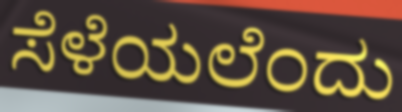
ಸೆಳೆಯಲೆಂದು